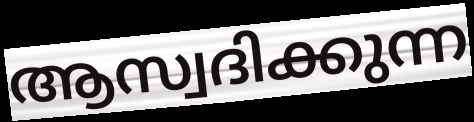
ആസ്വദിക്കുന്ന